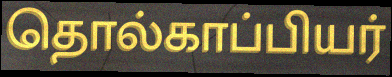
தொல்காப்பியர்